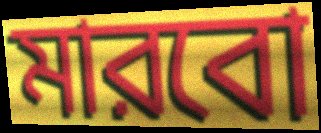
মারবো